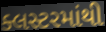
ક્લસ્ટરમાંથી